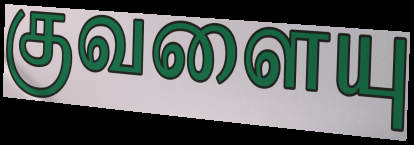
குவளையு